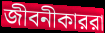
জীবনীকাররা